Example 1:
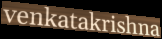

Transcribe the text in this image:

venkatakrishna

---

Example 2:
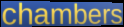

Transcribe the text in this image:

chambers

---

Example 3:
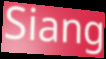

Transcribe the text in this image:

Siang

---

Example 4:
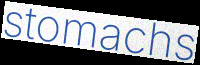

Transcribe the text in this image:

stomachs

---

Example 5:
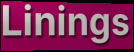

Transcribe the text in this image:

Linings